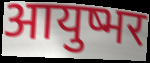
आयुष्भर